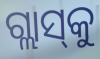
ଗ୍ଲାସ୍‌କୁ